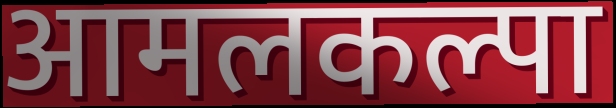
आमलकल्पा